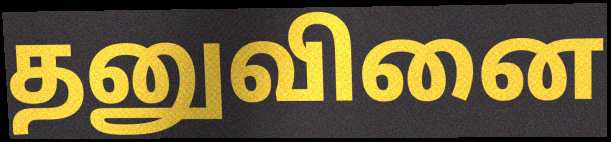
தனுவினை